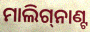
ମାଲିଗ୍‌ନାଣ୍ଟ